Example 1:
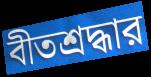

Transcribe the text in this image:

বীতশ্রদ্ধার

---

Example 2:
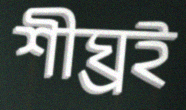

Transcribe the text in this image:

শীঘ্রই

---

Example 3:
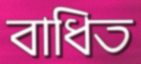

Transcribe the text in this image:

বাধিত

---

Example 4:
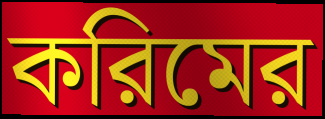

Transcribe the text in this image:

করিমের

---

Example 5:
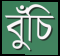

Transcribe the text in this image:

বুঁচি